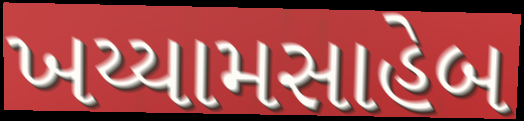
ખય્યામસાહેબ